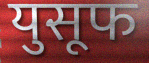
युसूफ